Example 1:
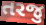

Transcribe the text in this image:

તરજુ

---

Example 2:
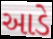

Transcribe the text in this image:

આડે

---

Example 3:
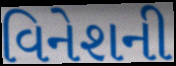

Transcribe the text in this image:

વિનેશની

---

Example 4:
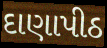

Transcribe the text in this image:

દાણાપીઠ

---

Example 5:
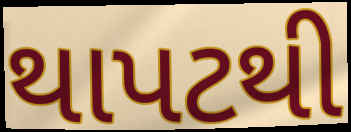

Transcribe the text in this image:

થાપટથી